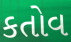
કતોવ